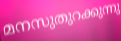
മനസുതുറക്കുന്നു